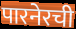
पारनेरची